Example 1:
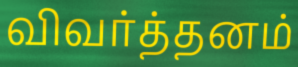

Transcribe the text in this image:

விவர்த்தனம்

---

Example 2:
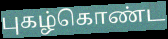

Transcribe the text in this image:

புகழ்கொண்ட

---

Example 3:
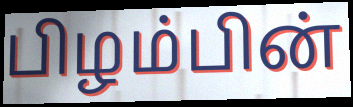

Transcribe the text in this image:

பிழம்பின்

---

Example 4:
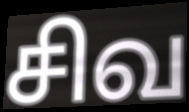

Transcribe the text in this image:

சிவ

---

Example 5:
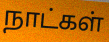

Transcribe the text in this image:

நாட்கள்